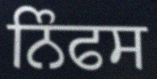
ਨਿੰਫਸ